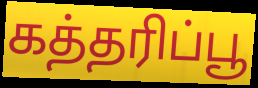
கத்தரிப்பூ